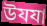
উযযা